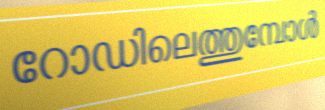
റോഡിലെത്തുമ്പോൾ